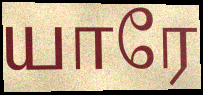
யாரே